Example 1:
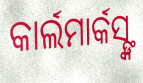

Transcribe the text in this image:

କାର୍ଲମାର୍କସ୍ଙ୍କ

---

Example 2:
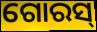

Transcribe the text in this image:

ଗୋରସ୍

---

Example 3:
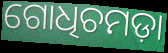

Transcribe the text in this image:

ଗୋଧିଚମଡ଼ା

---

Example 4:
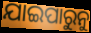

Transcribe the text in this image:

ଯାଇପାରୁନୁ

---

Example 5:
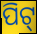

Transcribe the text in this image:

ପିଟ୍